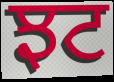
ਝਟ